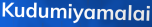
Kudumiyamalai